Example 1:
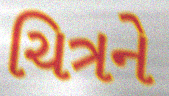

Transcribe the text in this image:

ચિત્રને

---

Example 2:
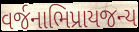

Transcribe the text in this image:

વર્જનાભિપ્રાયજન્ય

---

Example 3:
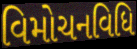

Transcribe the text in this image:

વિમોચનવિધિ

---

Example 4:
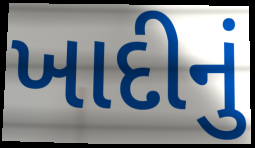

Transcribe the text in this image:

ખાદીનું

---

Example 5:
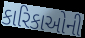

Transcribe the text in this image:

કારિકાઓની